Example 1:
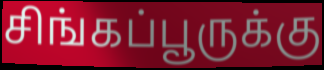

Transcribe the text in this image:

சிங்கப்பூருக்கு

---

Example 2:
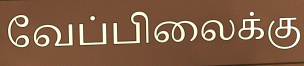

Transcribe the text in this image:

வேப்பிலைக்கு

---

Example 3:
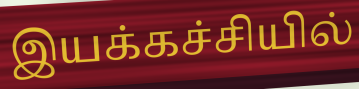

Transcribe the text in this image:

இயக்கச்சியில்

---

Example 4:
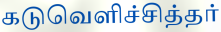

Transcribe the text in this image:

கடுவெளிச்சித்தர்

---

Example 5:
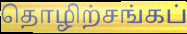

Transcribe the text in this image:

தொழிற்சங்கப்